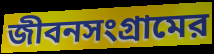
জীবনসংগ্রামের